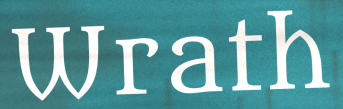
Wrath